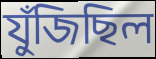
যুঁজিছিল